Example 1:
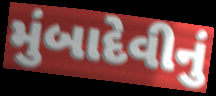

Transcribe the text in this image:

મુંબાદેવીનું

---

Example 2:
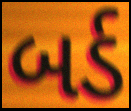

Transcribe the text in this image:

બર્ડ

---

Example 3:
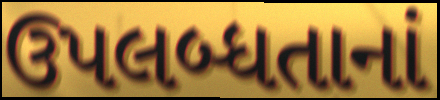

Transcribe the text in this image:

ઉપલબ્ધતાનાં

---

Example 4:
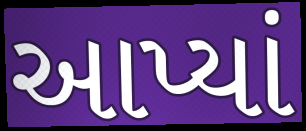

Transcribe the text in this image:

આપ્યાં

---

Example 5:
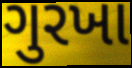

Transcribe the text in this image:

ગુરખા